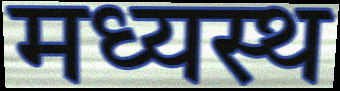
मध्यस्थ